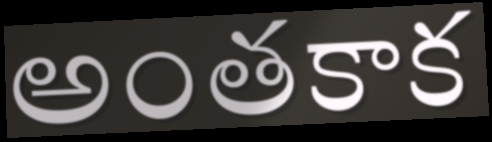
అంతకాక